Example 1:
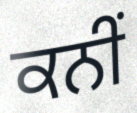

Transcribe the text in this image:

ਕਨੀਂ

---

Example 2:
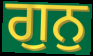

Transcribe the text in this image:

ਗੁਨੁ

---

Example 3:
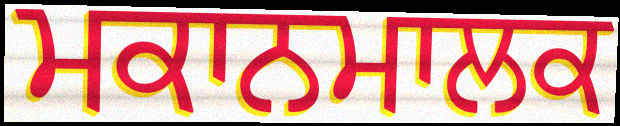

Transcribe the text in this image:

ਮਕਾਨਮਾਲਕ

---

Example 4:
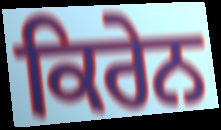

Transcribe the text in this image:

ਕਿਰੇਨ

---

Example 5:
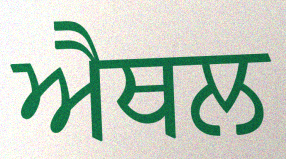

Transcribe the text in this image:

ਐਥਲ